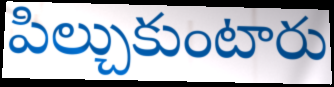
పిల్చుకుంటారు